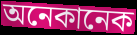
অনেকানেক